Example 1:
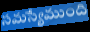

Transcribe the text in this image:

సమస్యేముంది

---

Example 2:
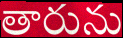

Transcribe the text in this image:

తారును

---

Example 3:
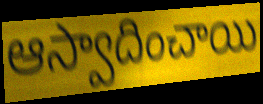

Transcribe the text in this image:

ఆస్వాదించాయి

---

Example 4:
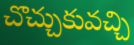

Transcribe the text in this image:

చొచ్చుకువచ్చి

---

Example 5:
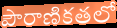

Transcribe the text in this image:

పౌరాణికతలో